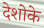
देशोके